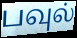
பவுல்